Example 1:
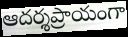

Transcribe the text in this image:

ఆదర్శప్రాయంగా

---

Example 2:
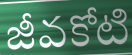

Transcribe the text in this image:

జీవకోటి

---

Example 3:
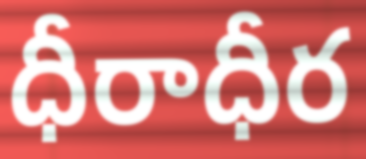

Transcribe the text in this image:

ధీరాధీర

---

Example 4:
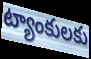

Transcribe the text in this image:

ట్యాంకులకు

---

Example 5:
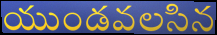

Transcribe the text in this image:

యుండవలసిన